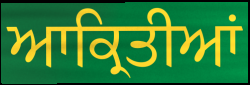
ਆਕ੍ਰਿਤੀਆਂ